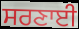
ਸਰਣਾਈ